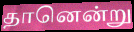
தானென்று